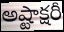
అష్టాక్షరీ